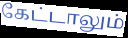
கேட்டாலும்